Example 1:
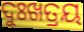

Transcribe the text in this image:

ଦୁଃଖତ୍ରୟ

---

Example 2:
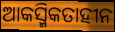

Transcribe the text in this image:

ଆକସ୍ମିକତାହୀନ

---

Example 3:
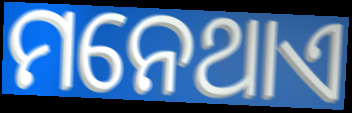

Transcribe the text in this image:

ମନେଥାଏ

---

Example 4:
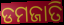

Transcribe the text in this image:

ଡମଜାତି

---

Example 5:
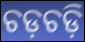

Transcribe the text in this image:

ଚଡ଼ଚଡ଼ି